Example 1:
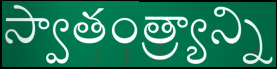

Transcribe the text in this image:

స్వాతంత్ర్యాన్ని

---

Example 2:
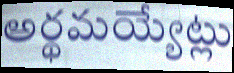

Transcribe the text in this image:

అర్థమయ్యేట్లు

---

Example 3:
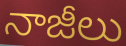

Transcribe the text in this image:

నాజీలు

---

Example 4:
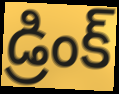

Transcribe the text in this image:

డ్రింక్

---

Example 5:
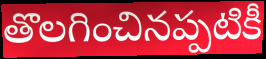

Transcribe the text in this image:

తొలగించినప్పటికీ